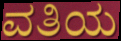
ವತಿಯ